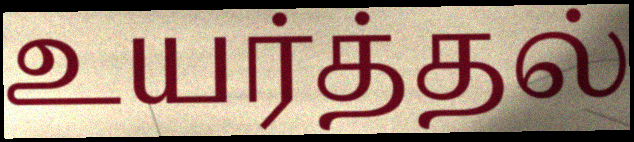
உயர்த்தல்